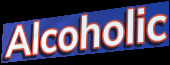
Alcoholic